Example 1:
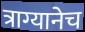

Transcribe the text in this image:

त्राग्यानेच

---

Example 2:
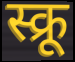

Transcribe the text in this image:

स्क्रू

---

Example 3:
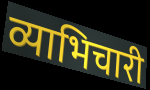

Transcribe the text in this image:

व्याभिचारी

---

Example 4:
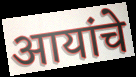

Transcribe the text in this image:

आयांचे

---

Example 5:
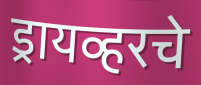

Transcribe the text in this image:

ड्रायव्हरचे